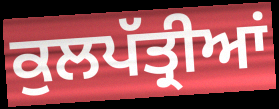
ਕੁਲਪੱਤ੍ਰੀਆਂ